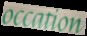
occation